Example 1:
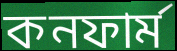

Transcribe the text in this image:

কনফাৰ্ম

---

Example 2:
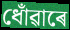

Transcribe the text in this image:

ধোঁৱাৰে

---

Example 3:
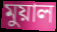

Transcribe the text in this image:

মুয়াল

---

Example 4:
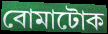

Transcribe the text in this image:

বোমাটোক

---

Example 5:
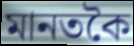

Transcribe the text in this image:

মানতকৈ